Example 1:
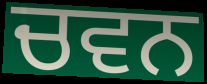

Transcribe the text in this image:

ਚਵਨ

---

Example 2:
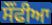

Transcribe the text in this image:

ਸੌਂਫੀਆ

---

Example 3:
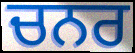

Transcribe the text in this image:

ਚਨਰ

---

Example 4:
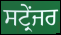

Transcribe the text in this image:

ਸਟ੍ਰੇਂਜਰ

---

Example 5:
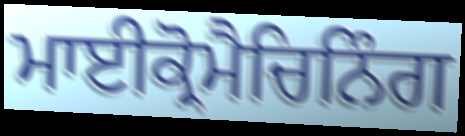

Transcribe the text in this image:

ਮਾਈਕ੍ਰੋਮੈਚਿਨਿੰਗ